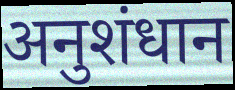
अनुशंधान